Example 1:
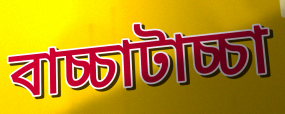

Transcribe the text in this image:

বাচ্চাটাচ্চা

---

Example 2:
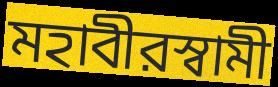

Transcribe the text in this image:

মহাবীরস্বামী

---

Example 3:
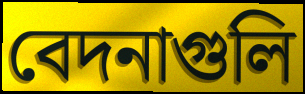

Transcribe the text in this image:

বেদনাগুলি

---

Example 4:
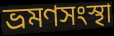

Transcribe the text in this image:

ভ্রমণসংস্থা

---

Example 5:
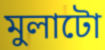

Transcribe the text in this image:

মুলাটো